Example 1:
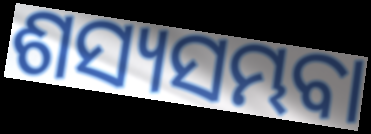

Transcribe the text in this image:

ଶସ୍ୟସମ୍ଭବା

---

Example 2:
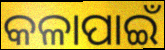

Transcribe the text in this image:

କଳାପାଇଁ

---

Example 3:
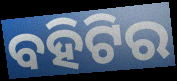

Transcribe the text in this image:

ବହିଟିର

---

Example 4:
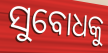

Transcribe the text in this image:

ସୁବୋଧକୁ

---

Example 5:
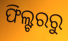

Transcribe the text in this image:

ଫିଲ୍ଟରରୁ